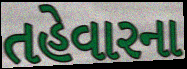
તહેવારના